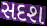
સદશ